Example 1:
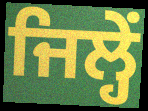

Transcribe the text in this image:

ਜਿਲ੍ਹੇਂ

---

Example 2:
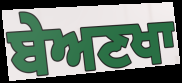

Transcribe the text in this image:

ਬੇਅਣਖਾ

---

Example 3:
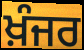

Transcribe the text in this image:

ਖ਼ੰਜਰ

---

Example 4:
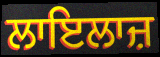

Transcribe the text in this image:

ਲਾਇਲਾਜ਼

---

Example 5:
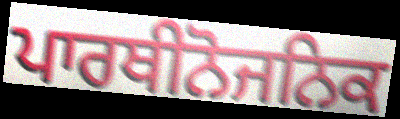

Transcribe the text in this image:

ਪਾਰਥੀਨੋਜਨਿਕ